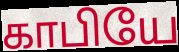
காபியே